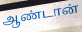
ஆண்டான்